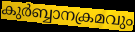
കുർബ്ബാനക്രമവും